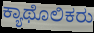
ಕ್ಯಾಥೊಲಿಕರು